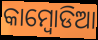
କାମ୍ବୋଡିଆ